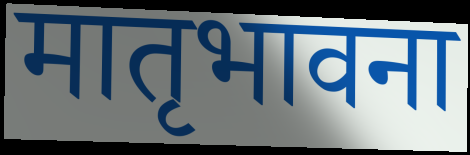
मातृभावना